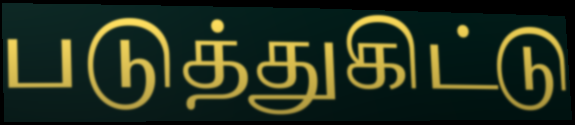
படுத்துகிட்டு